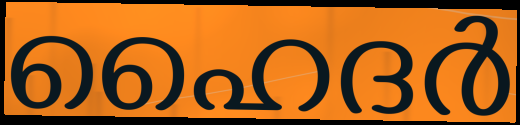
ഹൈദർ